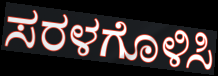
ಸರಳಗೊಳಿಸಿ